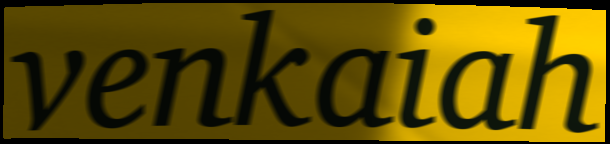
venkaiah